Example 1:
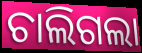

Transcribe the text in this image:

ଚାଲିଗଲା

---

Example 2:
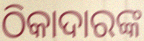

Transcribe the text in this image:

ଠିକାଦାରଙ୍କ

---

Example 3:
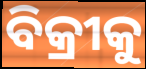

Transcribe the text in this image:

ବିକ୍ରୀକୁ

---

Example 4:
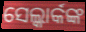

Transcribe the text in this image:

ସେଲ୍କାର୍କଙ୍କ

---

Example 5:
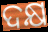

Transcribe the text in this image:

ଦକ୍ଷ